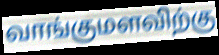
வாங்குமளவிற்கு